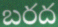
బరద